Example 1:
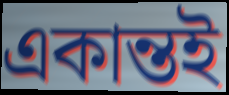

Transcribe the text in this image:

একান্তই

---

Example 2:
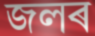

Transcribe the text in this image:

জলৰ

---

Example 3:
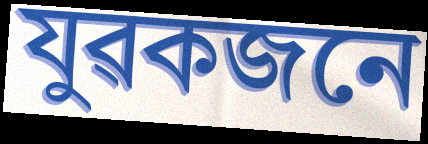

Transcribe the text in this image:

যুৱকজনে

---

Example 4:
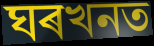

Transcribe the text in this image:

ঘৰখনত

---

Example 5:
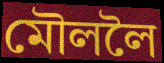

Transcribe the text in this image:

মৌললৈ